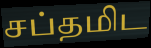
சப்தமிட